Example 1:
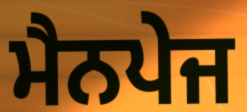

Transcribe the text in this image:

ਮੈਨਪੇਜ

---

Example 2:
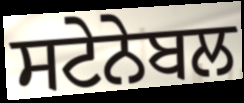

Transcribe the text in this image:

ਸਟੇਨੇਬਲ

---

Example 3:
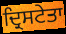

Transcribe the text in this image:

ਦ੍ਰਿਸਟੇਤਾ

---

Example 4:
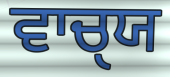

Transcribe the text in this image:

ਵਾਚੑਯ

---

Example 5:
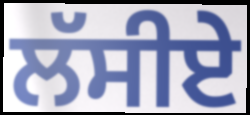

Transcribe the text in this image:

ਲੱਸੀਏ